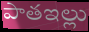
పాతఇల్లు